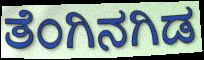
ತೆಂಗಿನಗಿಡ